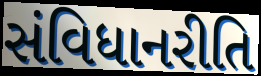
સંવિધાનરીતિ